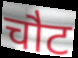
चौट